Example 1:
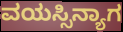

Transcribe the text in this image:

ವಯಸ್ಸಿನ್ಯಾಗ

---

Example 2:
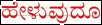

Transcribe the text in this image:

ಹೇಳುವುದೂ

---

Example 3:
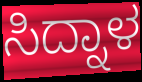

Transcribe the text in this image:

ಸಿದ್ನಾಳ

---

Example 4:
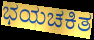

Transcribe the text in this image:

ಭಯಚಕಿತ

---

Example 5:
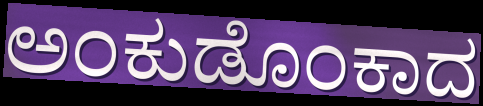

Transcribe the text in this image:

ಅಂಕುಡೊಂಕಾದ